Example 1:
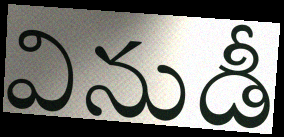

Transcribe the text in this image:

వినుడీ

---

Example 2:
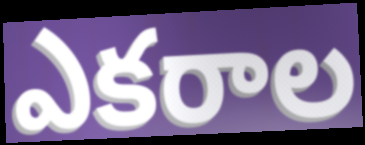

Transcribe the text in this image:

ఎకరాల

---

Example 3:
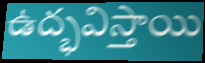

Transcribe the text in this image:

ఉద్భవిస్తాయి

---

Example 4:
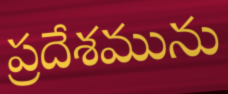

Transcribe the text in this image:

ప్రదేశమును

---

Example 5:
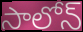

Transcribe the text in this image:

సాలోన్